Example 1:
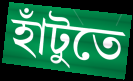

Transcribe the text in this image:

হাঁটুতে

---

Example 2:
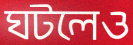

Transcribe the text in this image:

ঘটলেও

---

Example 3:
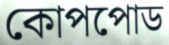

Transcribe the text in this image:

কোপপোড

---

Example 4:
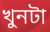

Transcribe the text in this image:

খুনটা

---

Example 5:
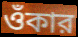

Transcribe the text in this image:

ওঁকার